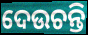
ଦେଉଚନ୍ତି